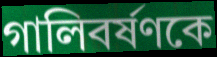
গালিবর্ষণকে